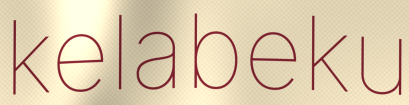
kelabeku